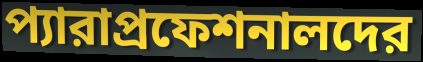
প্যারাপ্রফেশনালদের